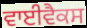
ਵਾਈਵੈਕਸ